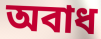
অবাধ